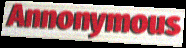
Annonymous